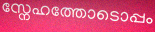
സ്നേഹത്തോടൊപ്പം